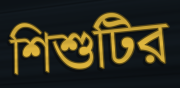
শিশুটির